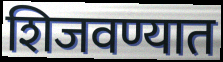
शिजवण्यात